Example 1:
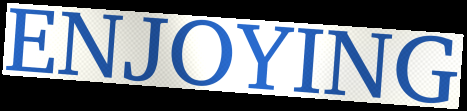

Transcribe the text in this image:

ENJOYING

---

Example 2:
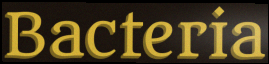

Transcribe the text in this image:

Bacteria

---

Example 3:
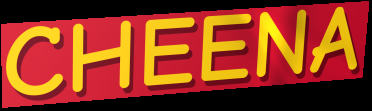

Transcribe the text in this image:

CHEENA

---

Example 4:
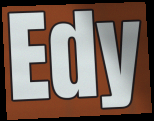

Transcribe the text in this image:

Edy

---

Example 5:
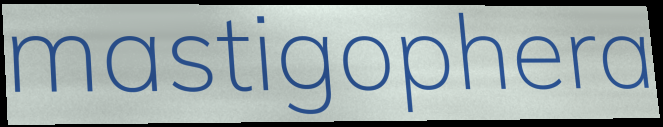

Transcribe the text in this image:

mastigophera